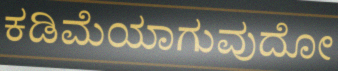
ಕಡಿಮೆಯಾಗುವುದೋ